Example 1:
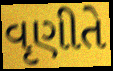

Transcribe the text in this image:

વૃણીતે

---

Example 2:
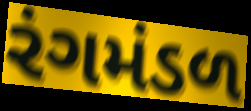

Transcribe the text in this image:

રંગમંડળ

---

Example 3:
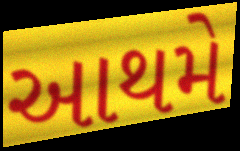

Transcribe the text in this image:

આથમે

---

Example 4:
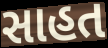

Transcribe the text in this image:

સાહત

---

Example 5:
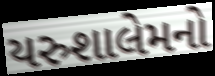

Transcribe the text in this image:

યરુશાલેમનો